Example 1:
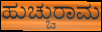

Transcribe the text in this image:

ಹುಚ್ಚುರಾಮ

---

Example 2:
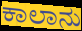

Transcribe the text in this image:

ಕಾಲಾನು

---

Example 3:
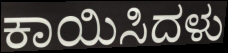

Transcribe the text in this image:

ಕಾಯಿಸಿದಳು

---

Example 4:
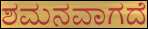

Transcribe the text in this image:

ಶಮನವಾಗದೆ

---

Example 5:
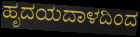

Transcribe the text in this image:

ಹೃದಯದಾಳದಿಂದ